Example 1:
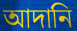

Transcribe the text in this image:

আদানি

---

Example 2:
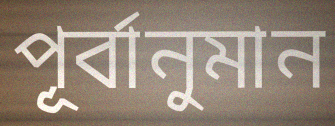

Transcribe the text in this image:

পূর্বানুমান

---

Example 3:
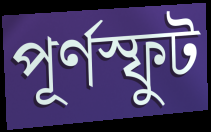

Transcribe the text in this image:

পূর্ণস্ফুট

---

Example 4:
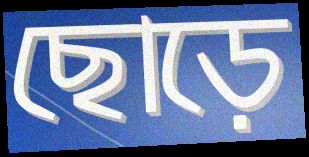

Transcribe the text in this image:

ছোড়ে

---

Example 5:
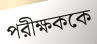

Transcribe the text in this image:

পরীক্ষককে